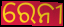
ରେନୀ